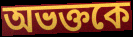
অভক্তকে